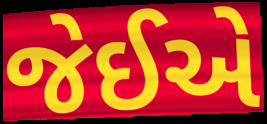
જેઈએ